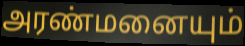
அரண்மனையும்